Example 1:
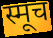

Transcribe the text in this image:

स्मूच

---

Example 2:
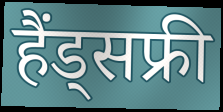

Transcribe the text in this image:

हैंड्सफ्री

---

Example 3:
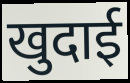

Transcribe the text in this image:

खुदाई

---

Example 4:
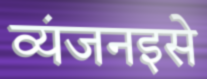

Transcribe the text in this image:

व्यंजनइसे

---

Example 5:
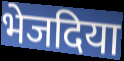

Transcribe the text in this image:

भेजदिया